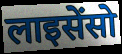
लाइसेंसो